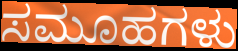
ಸಮೂಹಗಳು